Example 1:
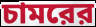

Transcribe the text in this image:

চামরের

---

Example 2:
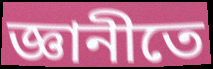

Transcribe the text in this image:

জ্ঞানীতে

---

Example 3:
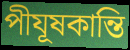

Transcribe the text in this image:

পীযূষকান্তি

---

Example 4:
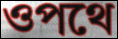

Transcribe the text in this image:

ওপথে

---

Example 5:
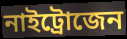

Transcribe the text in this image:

নাইট্রোজেন